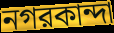
নগরকান্দা